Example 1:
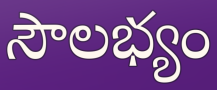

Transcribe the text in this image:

సౌలభ్యం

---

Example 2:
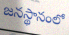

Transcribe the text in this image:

జనస్థానంలో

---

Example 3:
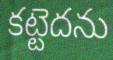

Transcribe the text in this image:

కట్టెదను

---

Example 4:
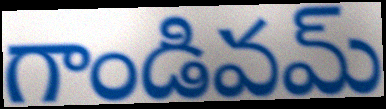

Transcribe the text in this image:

గాండివమ్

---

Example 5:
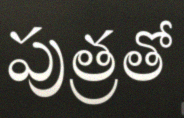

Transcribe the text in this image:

పుత్రతో